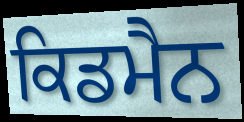
ਕਿਡਮੈਨ